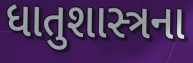
ધાતુશાસ્ત્રના